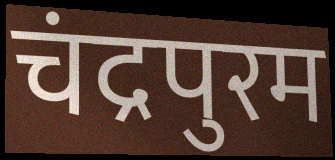
चंद्रपुरम